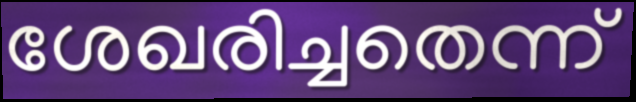
ശേഖരിച്ചതെന്ന്